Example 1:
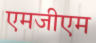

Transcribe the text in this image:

एमजीएम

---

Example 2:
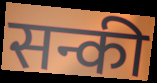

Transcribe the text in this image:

सन्की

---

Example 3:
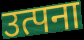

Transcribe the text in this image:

उत्पना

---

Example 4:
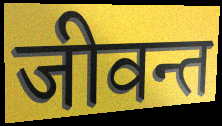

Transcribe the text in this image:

जीवन्त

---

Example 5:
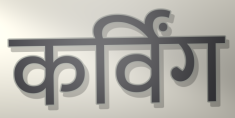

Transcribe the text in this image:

कर्विंग